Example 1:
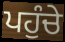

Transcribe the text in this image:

ਪਹੁੰਚੇ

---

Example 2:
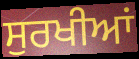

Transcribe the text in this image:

ਸੁਰਖੀਆਂ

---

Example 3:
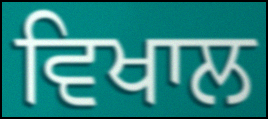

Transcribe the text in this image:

ਵਿਖਾਲ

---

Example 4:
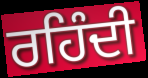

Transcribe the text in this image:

ਰਹਿੰਦੀ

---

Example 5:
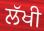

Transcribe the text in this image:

ਲੱਖੀ